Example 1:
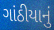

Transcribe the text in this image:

ગાંઠીયાનું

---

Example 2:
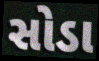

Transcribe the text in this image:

સોડા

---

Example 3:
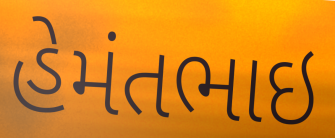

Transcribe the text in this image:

હેમંતભાઇ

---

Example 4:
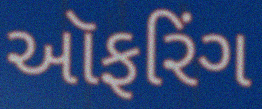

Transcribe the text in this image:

ઑફરિંગ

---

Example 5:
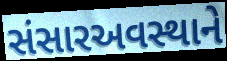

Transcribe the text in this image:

સંસારઅવસ્થાને